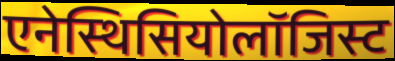
एनेस्थिसियोलॉजिस्ट